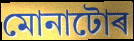
মোনাটোৰ